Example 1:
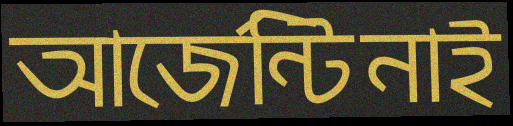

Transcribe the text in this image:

আর্জেন্টিনাই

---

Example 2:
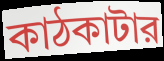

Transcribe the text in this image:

কাঠকাটার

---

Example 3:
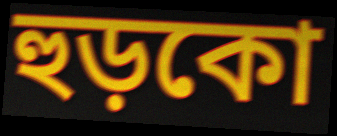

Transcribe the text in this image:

হুড়কো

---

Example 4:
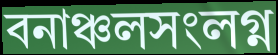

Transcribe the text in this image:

বনাঞ্চলসংলগ্ন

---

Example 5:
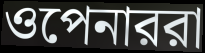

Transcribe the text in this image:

ওপেনাররা